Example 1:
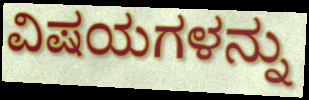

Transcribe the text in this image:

ವಿಷಯಗಳನ್ನು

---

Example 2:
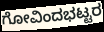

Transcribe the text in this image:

ಗೋವಿಂದಭಟ್ಟರ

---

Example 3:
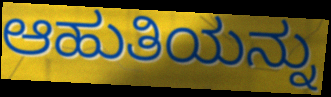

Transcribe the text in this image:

ಆಹುತಿಯನ್ನು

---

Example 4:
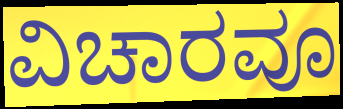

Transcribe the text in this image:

ವಿಚಾರವೂ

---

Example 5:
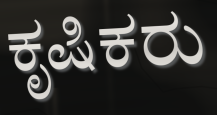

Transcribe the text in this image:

ಕೃಷಿಕರು